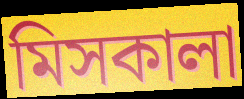
মিসকালা